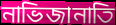
নাভিজানাতি